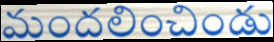
మందలించిండు